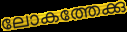
ലോകത്തേക്കു